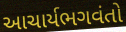
આચાર્યભગવંતો